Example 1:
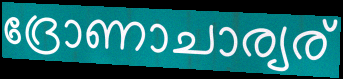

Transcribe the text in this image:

ദ്രോണാചാര്യര്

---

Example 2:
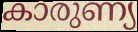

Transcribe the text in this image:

കാരുണ്യ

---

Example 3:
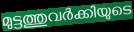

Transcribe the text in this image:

മുട്ടത്തുവർക്കിയുടെ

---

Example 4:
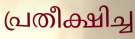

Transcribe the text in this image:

പ്രതീക്ഷിച്ച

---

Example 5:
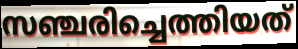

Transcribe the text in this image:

സഞ്ചരിച്ചെത്തിയത്